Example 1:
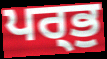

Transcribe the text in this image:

ਪਰ੍ਭੁ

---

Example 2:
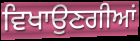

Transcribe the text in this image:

ਵਿਖਾਉਣਗੀਆਂ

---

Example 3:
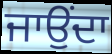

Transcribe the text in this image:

ਜਾਉਂਦਾ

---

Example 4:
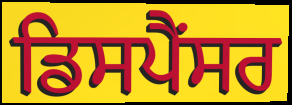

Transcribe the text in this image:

ਡਿਸਪੈਂਸਰ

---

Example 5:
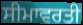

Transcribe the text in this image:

ਸੀਮਾਵਰਤੀ